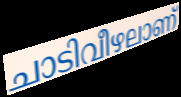
ചാടിവീഴലാണ്